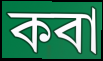
কবা